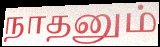
நாதனும்